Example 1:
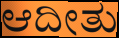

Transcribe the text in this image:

ಆದೀತು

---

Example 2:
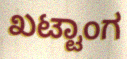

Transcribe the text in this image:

ಖಟ್ಟಾಂಗ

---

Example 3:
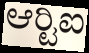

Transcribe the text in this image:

ಆರ್‍ಟಿಐ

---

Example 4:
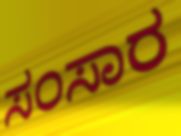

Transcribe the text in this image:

ಸಂಸಾರ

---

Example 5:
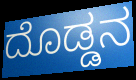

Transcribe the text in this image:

ದೊಡ್ಡನ